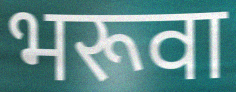
भरूवा